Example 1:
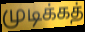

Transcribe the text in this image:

முடிக்கத்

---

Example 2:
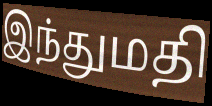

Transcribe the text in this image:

இந்துமதி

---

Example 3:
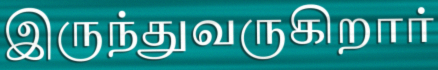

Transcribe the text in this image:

இருந்துவருகிறார்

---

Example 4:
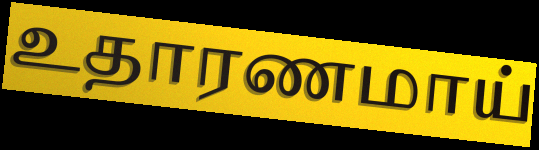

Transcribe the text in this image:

உதாரணமாய்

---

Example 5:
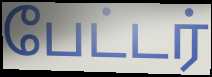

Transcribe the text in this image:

பேட்டர்